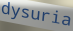
dysuria